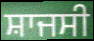
ਸ਼ਾਜਸੀ